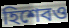
হিশেবও